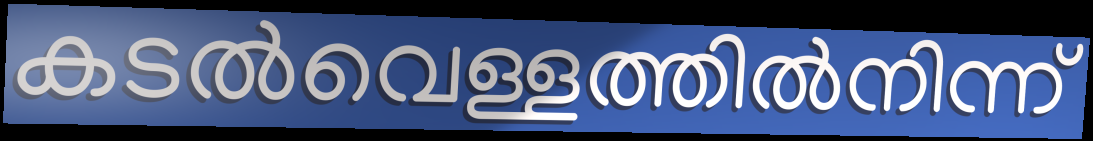
കടൽവെള്ളത്തിൽനിന്ന്